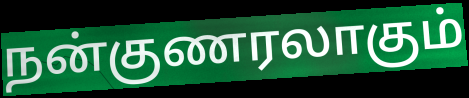
நன்குணரலாகும்